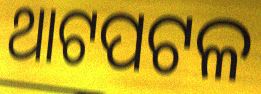
ଥାଟପଟଳ